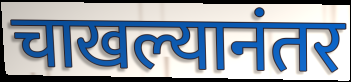
चाखल्यानंतर